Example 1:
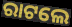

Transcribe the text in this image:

ରାଟଲେ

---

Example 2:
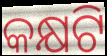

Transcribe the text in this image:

କକ୍ଷଟି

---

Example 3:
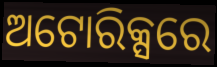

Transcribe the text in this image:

ଅଟୋରିକ୍ସରେ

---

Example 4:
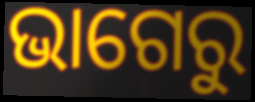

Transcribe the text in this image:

ଭାଗେରୁ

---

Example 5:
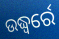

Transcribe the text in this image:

ଉଦ୍ଧ୍ୱର୍ରେ